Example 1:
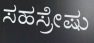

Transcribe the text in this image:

ಸಹಸ್ರೇಷು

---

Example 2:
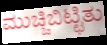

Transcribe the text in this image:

ಮುಚ್ಚಿಬಿಟ್ಟಿತು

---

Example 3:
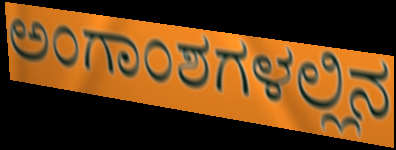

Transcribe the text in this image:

ಅಂಗಾಂಶಗಳಲ್ಲಿನ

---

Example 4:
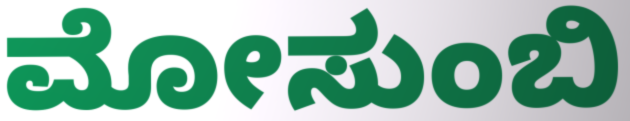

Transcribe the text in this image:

ಮೋಸುಂಬಿ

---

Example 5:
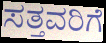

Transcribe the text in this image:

ಸತ್ತವರಿಗೆ